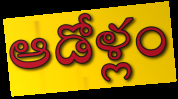
ఆడోళ్లం